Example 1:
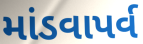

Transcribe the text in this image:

માંડવાપર્વ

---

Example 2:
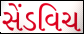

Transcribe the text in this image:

સેંડવિચ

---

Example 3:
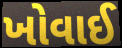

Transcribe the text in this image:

ખોવાઈ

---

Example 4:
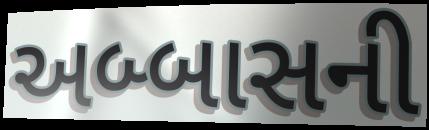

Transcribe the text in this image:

અબ્બાસની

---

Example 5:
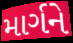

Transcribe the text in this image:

માર્ગને